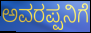
ಅವರಪ್ಪನಿಗೆ